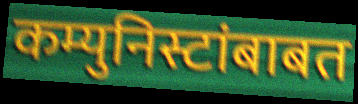
कम्युनिस्टांबाबत